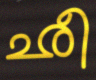
ഛീ